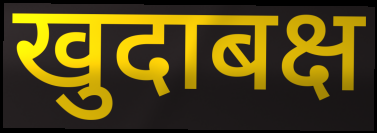
खुदाबक्ष